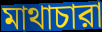
মাথাচারা